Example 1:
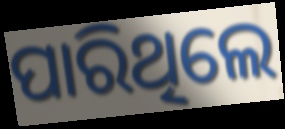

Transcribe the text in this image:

ପାରିଥିଲେ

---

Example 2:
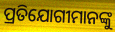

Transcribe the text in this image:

ପ୍ରତିଯୋଗୀମାନଙ୍କୁ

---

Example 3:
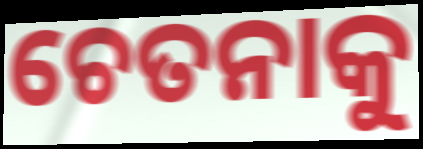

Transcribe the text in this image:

ଚେତନାକୁ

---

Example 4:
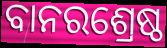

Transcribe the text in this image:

ବାନରଶ୍ରେଷ୍ଠ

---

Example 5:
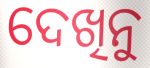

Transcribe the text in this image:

ଦେଖିନୁ